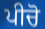
ਪੀਚੋ